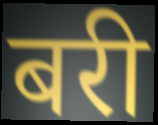
बरी